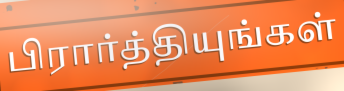
பிரார்த்தியுங்கள்